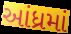
આંધ્રમાં